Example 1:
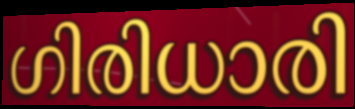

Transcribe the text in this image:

ഗിരിധാരി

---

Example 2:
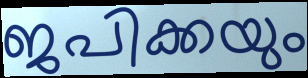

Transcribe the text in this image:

ജപിക്കയും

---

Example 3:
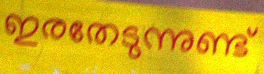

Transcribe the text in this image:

ഇരതേടുന്നുണ്ട്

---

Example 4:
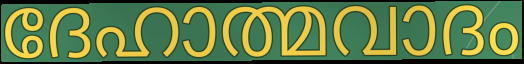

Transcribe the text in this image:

ദേഹാത്മവാദം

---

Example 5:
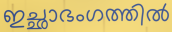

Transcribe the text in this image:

ഇച്ഛാഭംഗത്തിൽ